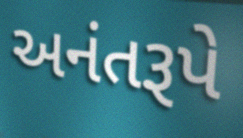
અનંતરૂપે